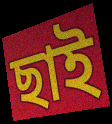
ছাই